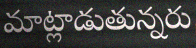
మాట్లాడుతున్నరు